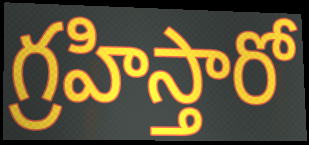
గ్రహిస్తారో